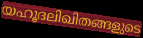
യഹൂദലിഖിതങ്ങളുടെ